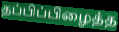
தப்பிப்பிழைத்த